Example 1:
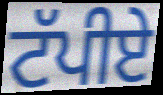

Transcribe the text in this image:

ਟੱਪੀਏ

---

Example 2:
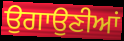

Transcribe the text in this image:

ਉਗਾਉਣੀਆਂ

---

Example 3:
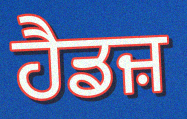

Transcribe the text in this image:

ਹੈਡਜ਼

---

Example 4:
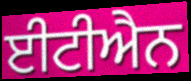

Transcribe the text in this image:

ਈਟੀਐਨ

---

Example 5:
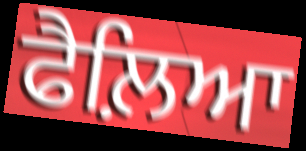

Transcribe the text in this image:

ਫੈਲ਼ਿਆ